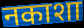
नकाशा